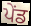
ਪੇਂਡ